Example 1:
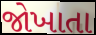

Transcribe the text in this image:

જોખાતા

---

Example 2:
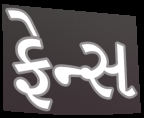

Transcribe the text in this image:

ફેન્સ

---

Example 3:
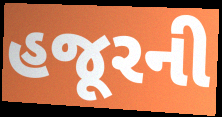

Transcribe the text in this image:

હજૂરની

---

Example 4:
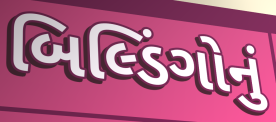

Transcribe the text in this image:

બિલ્ડિંગોનું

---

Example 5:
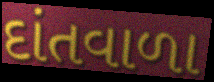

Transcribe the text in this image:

દાંતવાળા